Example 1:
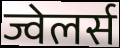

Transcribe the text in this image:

ज्वेलर्स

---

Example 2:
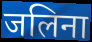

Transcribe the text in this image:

जलिना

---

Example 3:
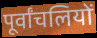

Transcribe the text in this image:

पूर्वांचलियों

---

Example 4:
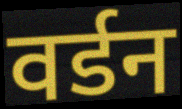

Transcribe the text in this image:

वर्डन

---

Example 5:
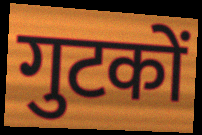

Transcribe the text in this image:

गुटकों